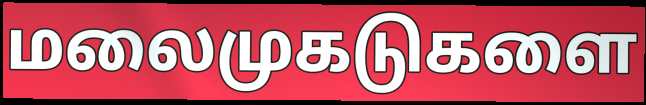
மலைமுகடுகளை